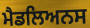
ਮੈਡਲਿਅਨਸ